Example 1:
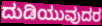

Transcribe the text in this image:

ದುಡಿಯುವುದರ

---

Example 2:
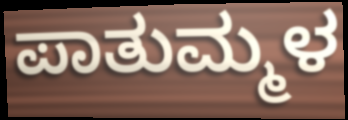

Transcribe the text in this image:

ಪಾತುಮ್ಮಳ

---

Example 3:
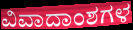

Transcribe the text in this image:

ವಿವಾದಾಂಶಗಳ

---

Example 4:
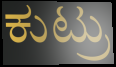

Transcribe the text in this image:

ಕುಟ್ರು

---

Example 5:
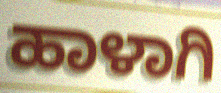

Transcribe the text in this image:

ಹಾಳಾಗಿ